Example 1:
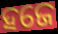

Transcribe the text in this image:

ହଜେ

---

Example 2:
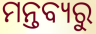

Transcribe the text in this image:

ମନ୍ତବ୍ୟରୁ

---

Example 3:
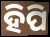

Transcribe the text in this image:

ହିପି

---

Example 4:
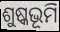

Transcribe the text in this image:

ଶୁଷ୍କଭୂମି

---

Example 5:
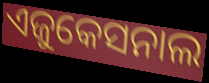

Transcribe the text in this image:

ଏଜୁକେସନାଲ